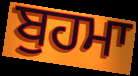
ਬੁਹਮਾ